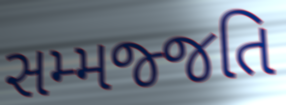
સમ્મજ્જતિ